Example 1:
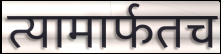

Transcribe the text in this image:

त्यामार्फतच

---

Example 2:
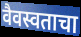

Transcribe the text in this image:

वैवस्वताचा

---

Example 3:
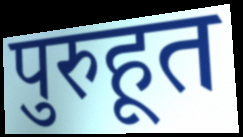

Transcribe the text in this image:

पुरुहूत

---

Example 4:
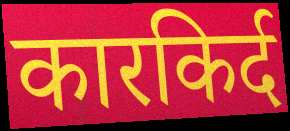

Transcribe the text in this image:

कारकिर्द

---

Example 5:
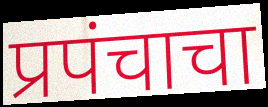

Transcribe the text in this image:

प्रपंचाचा